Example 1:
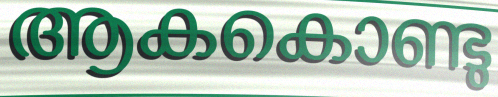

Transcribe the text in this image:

ആകകൊണ്ടു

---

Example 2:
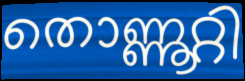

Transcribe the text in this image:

തൊണ്ണൂറ്റി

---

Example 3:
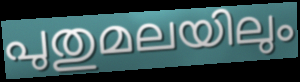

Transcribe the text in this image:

പുതുമലയിലും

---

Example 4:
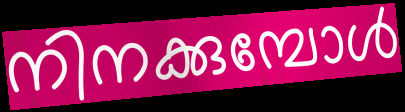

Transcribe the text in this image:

നിനക്കുമ്പോൾ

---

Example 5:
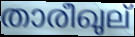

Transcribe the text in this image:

താരീഖുല്